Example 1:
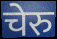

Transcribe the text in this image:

चेरु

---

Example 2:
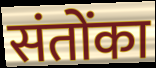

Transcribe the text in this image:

संतोंका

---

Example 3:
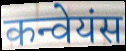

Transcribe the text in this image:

कन्वेयंस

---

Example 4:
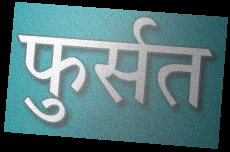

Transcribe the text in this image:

फुर्सत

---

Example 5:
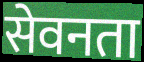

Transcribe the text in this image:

सेवनता